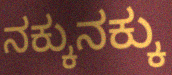
ನಕ್ಕುನಕ್ಕು